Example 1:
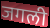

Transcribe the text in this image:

जगली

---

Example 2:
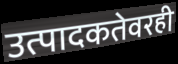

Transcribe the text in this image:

उत्पादकतेवरही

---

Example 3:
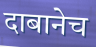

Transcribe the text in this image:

दाबानेच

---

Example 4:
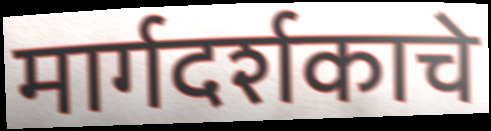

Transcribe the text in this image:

मार्गदर्शकाचे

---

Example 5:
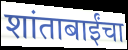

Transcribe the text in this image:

शांताबाईंचा